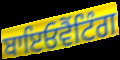
ਬਾਇਓਵੈਂਟਿੰਗ